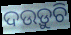
ଦଉଡ଼ୁଚି